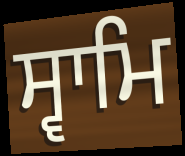
ਸ੍ਵਾਮਿ